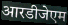
आरडीजेएम